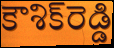
కౌశిక్‌రెడ్డి